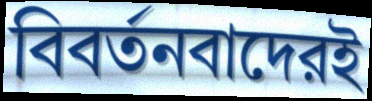
বিবর্তনবাদেরই